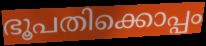
ഭൂപതിക്കൊപ്പം